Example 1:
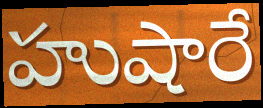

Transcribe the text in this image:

హుషారే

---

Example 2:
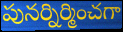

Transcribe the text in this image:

పునర్నిర్మించగా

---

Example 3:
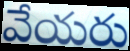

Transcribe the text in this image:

వేయరు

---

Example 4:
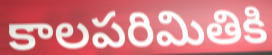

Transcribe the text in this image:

కాలపరిమితికి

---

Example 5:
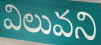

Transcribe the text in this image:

విలువని